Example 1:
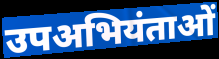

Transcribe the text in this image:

उपअभियंताओं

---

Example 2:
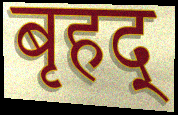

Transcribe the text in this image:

बृहद्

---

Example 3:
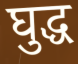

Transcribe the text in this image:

घुद्ध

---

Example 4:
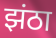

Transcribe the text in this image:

झंठा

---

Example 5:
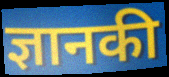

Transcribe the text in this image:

ज्ञानकी